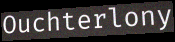
Ouchterlony